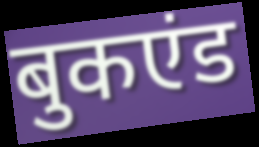
बुकएंड